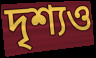
দৃশ্যও